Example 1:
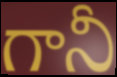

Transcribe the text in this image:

గానీ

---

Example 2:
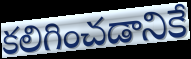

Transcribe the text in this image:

కలిగించడానికే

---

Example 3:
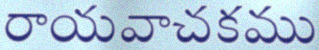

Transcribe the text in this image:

రాయవాచకము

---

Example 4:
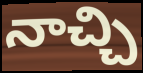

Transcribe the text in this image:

నాచ్చి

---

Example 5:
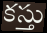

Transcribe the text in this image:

కస్తు